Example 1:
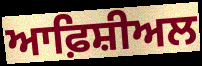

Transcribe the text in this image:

ਆਫ਼ਿਸ਼ੀਅਲ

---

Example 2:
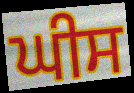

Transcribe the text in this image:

ਘੀਸ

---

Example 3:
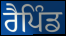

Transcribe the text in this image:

ਰੈਪਿੰਡ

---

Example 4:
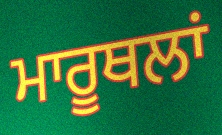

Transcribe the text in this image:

ਮਾਰੂਥਲਾਂ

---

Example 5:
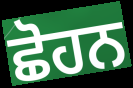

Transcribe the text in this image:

ਛੋਹਨ